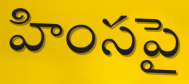
హింసపై